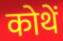
कोथें